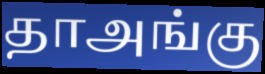
தாஅங்கு